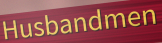
Husbandmen